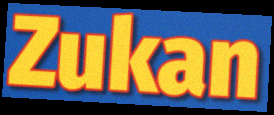
Zukan